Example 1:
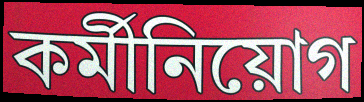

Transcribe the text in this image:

কর্মীনিয়োগ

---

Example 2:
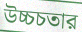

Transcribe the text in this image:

উচ্চচতার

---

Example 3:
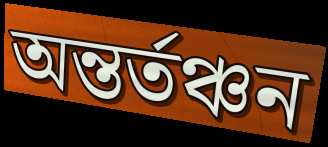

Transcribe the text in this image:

অন্তর্তঞ্চন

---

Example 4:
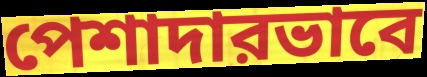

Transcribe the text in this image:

পেশাদারভাবে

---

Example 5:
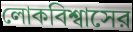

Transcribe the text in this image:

লোকবিশ্বাসের